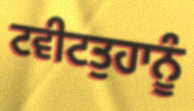
ਟਵੀਟਤੁਹਾਨੂੰ